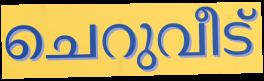
ചെറുവീട്